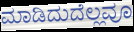
ಮಾಡಿದುದೆಲ್ಲವೂ